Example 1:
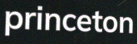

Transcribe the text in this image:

princeton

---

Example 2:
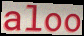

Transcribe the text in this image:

aloo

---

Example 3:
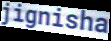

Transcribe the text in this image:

jignisha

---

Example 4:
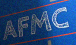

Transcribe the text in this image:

AFMC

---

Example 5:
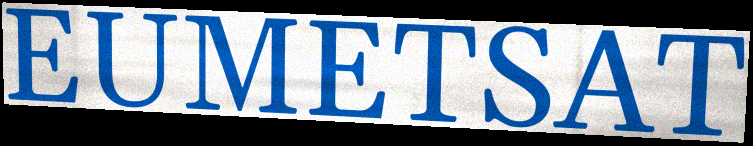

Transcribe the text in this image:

EUMETSAT